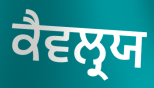
ਕੈਵਲ੍ਰਯ